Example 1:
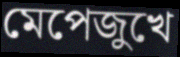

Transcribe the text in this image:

মেপেজুখে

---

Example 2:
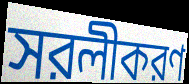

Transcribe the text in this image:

সরলীকরণ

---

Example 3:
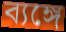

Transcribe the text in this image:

ব্যঙ্গে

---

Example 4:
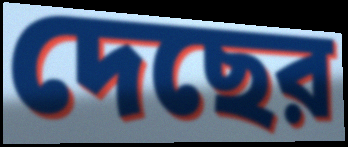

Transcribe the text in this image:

দেছের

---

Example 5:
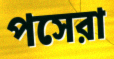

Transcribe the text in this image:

পসেরা